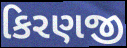
કિરણજી